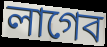
লাগেব